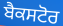
ਬੈਕਸਟੋਰ